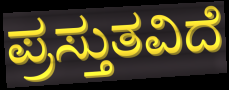
ಪ್ರಸ್ತುತವಿದೆ